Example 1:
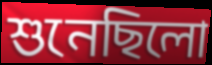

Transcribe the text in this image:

শুনেছিলো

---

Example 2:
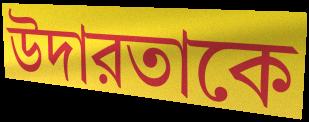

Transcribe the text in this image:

উদারতাকে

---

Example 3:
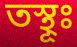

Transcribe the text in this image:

তস্থূঃ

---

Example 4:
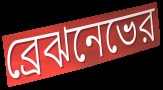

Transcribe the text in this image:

ব্রেঝনেভের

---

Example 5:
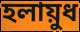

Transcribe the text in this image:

হলায়ুধ